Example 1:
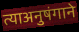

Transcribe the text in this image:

त्याअनुषंगाने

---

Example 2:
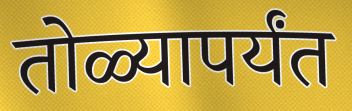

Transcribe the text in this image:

तोळ्यापर्यंत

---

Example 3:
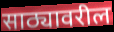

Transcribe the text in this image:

साठ्यावरील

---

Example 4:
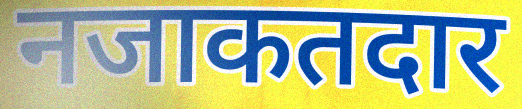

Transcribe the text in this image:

नजाकतदार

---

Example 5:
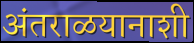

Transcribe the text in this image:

अंतराळयानाशी